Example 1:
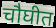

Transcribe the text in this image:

चौघीत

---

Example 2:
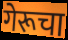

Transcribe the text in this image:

गेरूचा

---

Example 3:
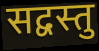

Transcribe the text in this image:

सद्वस्तु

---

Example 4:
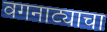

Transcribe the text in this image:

वगनाट्याचा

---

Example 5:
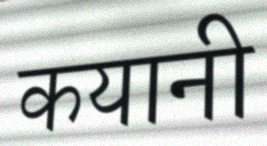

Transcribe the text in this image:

कयानी